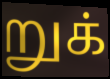
றுக்